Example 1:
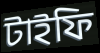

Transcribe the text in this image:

টাইফি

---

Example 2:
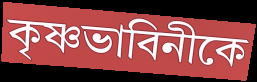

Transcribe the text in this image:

কৃষ্ণভাবিনীকে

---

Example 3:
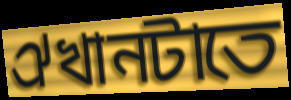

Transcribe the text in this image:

ঐখানটাতে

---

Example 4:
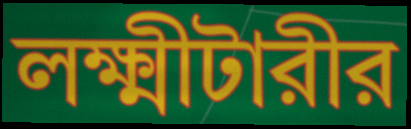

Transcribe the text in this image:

লক্ষ্মীটারীর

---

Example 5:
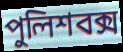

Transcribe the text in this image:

পুলিশবক্স